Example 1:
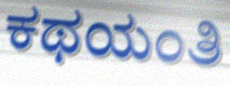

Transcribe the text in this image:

ಕಥಯಂತಿ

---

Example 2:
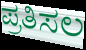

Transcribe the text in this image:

ಪ್ರತಿಸಲ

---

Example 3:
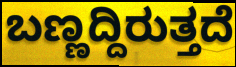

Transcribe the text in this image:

ಬಣ್ಣದ್ದಿರುತ್ತದೆ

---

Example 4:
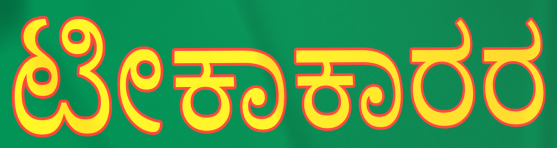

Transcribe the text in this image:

ಟೀಕಾಕಾರರ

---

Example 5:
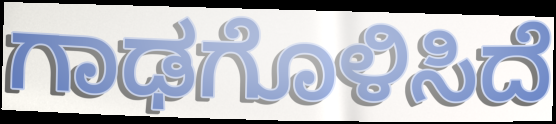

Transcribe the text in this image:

ಗಾಢಗೊಳಿಸಿದೆ